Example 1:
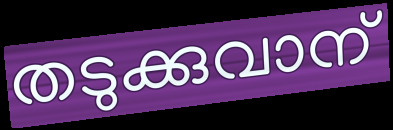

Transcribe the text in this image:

തടുക്കുവാന്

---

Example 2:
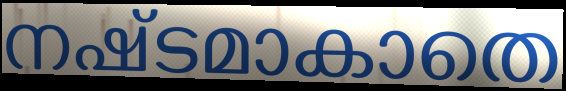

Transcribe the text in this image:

നഷ്‌ടമാകാതെ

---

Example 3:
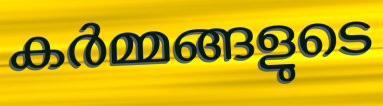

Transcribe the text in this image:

കർമ്മങ്ങളുടെ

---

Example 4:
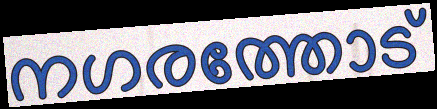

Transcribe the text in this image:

നഗരത്തോട്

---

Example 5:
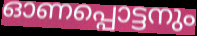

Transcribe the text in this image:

ഓണപ്പൊട്ടനും